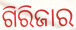
ଗିରିଜାର